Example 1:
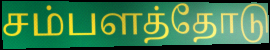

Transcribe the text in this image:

சம்பளத்தோடு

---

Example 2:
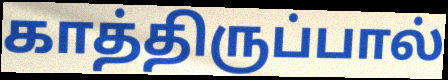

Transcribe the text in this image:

காத்திருப்பால்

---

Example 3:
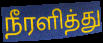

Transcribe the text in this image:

நீரளித்து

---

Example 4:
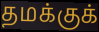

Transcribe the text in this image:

தமக்குக்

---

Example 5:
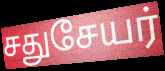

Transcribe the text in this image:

சதுசேயர்